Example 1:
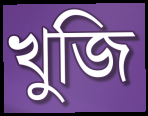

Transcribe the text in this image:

খুজি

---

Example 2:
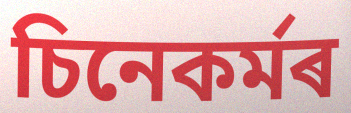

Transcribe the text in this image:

চিনেকৰ্মৰ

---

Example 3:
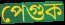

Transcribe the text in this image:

পেগুক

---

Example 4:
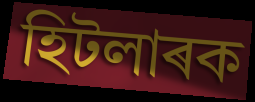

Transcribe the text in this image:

হিটলাৰক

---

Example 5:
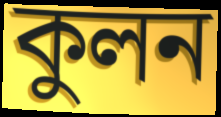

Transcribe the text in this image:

কুলন